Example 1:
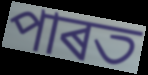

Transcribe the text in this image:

পাৰত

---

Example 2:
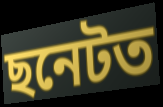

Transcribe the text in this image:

ছনেটত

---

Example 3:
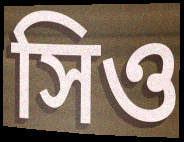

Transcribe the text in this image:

সিও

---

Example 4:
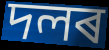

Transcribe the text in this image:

দলৰ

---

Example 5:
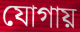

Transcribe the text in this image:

যোগায়